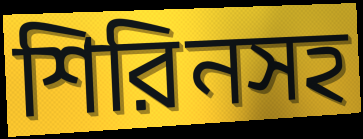
শিরিনসহ